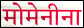
मोमेनीना